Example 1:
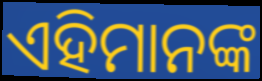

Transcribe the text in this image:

ଏହିମାନଙ୍କ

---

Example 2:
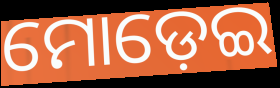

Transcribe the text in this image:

ମୋଡ଼େଇ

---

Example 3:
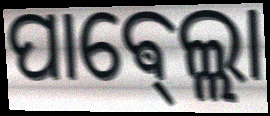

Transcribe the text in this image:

ପାଵ୍ଲ୍ଲୋ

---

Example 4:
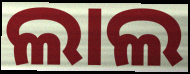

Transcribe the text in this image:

ଲାଲ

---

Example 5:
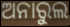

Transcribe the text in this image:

ଅନାରୁଲ